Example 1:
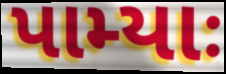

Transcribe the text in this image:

પામ્યાઃ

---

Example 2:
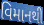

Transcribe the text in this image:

વિમાનથી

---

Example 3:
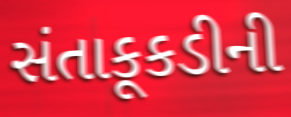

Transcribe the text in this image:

સંતાકૂકડીની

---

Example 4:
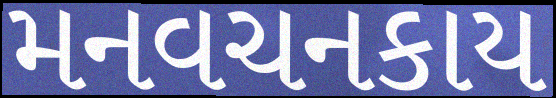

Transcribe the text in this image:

મનવચનકાય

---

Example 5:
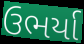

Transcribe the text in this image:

ઉભર્યા